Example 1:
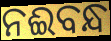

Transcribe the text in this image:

ନଈବନ୍ଧ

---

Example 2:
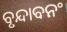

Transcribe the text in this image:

ବୃନ୍ଦାବନଂ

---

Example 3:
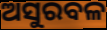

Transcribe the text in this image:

ଅସୁରବଳ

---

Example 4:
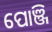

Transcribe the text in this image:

ପୋଞ୍ଜି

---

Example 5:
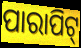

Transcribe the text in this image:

ପାରାପିଟ୍